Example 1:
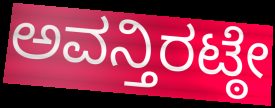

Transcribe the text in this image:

ಅವನ್ತಿರಟ್ಠೇ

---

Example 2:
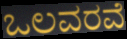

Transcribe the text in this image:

ಒಲವರವೆ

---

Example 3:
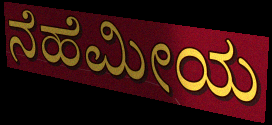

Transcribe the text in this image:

ನೆಹೆಮೀಯ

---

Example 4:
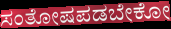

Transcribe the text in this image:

ಸಂತೋಷಪಡಬೇಕೋ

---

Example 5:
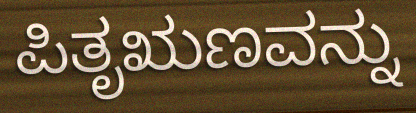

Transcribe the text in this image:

ಪಿತೃಋಣವನ್ನು